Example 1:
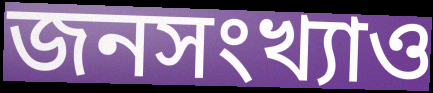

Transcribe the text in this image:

জনসংখ্যাও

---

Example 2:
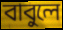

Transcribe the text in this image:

বাবুলে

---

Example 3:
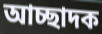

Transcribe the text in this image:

আচ্ছাদক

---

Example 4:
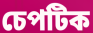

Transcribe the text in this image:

চেপটিক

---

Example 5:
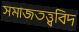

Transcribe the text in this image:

সমাজতত্ত্ববিদ